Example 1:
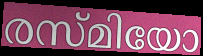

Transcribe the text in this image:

രസ്മിയോ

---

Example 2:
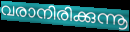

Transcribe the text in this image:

വരാനിരിക്കുന്നൂ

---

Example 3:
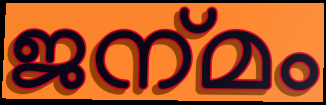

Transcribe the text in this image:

ജന്‌മം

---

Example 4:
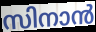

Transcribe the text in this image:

സിനാൻ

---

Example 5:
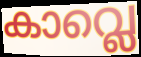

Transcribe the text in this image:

കാവ്ലെ